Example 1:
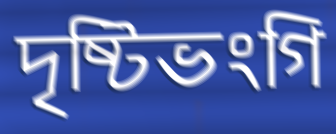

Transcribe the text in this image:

দৃষ্টিভংগি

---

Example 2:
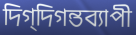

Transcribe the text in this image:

দিগ্‌দিগন্তব্যাপী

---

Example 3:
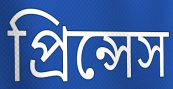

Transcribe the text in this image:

প্রিন্সেস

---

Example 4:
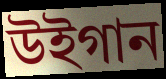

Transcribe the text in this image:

উইগান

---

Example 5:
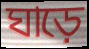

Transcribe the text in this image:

ঘাড়ে